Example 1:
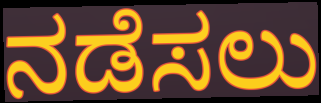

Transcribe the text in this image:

ನಡೆಸಲು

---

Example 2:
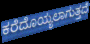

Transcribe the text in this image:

ಕರೆದೊಯ್ಯಲಾಗುತ್ತದೆ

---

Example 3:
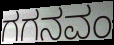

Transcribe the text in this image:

ಗಗನವಂ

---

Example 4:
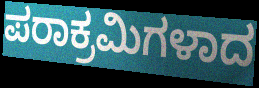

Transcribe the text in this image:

ಪರಾಕ್ರಮಿಗಳಾದ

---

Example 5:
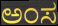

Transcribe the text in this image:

ಅಂಸ